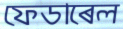
ফেডাৰেল